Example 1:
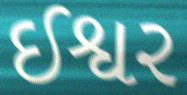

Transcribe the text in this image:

ઈશ્વર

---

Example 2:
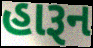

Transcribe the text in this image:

હારૂન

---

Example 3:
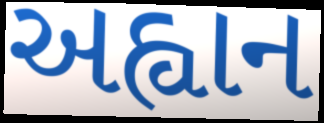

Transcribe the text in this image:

અહ્વાન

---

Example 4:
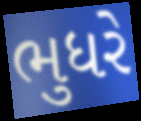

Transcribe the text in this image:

ભુધરે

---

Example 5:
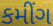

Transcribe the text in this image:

કમીંગ